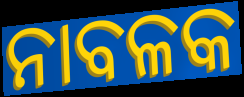
ନାବଳକ